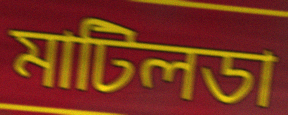
মাটিলডা